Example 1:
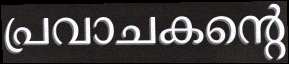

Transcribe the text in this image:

പ്രവാചകന്റെ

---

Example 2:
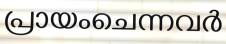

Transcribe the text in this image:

പ്രായംചെന്നവർ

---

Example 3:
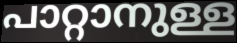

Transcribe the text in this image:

പാറ്റാനുള്ള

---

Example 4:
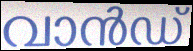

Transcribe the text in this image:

വാൻഡ്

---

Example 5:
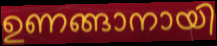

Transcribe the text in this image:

ഉണങ്ങാനായി